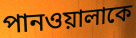
পানওয়ালাকে